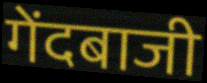
गेंदबाजी